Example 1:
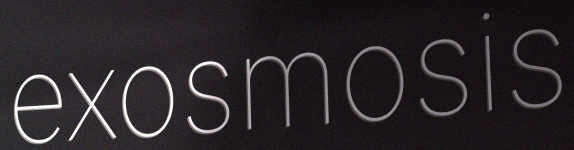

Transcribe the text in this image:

exosmosis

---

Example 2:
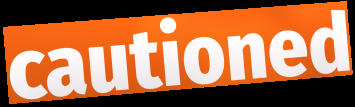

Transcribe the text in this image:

cautioned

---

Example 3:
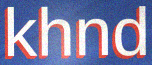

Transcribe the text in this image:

khnd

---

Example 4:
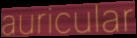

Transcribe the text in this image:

auricular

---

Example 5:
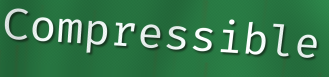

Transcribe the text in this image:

Compressible